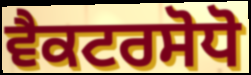
ਵੈਕਟਰਸੋਧੋ